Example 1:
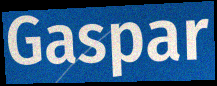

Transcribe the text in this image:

Gaspar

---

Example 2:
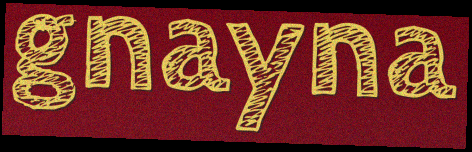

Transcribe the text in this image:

gnayna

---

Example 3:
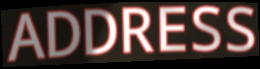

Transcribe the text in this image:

ADDRESS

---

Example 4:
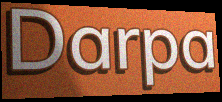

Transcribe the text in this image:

Darpa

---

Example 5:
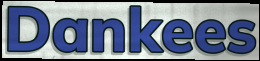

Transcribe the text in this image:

Dankees